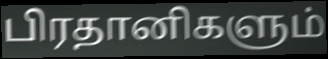
பிரதானிகளும்